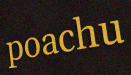
poachu